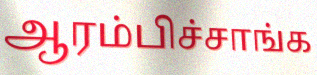
ஆரம்பிச்சாங்க